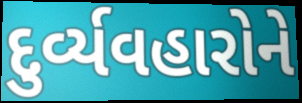
દુર્વ્યવહારોને